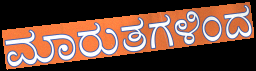
ಮಾರುತಗಳಿಂದ